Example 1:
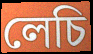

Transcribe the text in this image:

লেচি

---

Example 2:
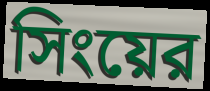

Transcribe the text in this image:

সিংয়ের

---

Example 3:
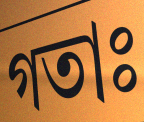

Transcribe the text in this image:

গতাঃ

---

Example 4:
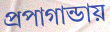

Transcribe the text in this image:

প্রপাগান্ডায়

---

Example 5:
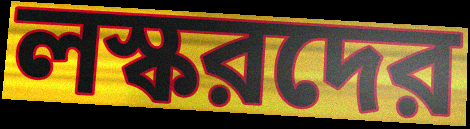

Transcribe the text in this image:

লস্করদের